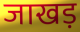
जाखड़